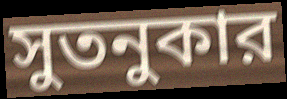
সুতনুকার